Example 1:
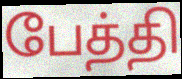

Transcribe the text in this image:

பேத்தி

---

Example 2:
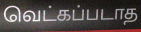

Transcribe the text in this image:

வெட்கப்படாத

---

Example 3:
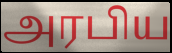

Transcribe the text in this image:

அரபிய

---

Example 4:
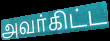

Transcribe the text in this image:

அவர்கிட்ட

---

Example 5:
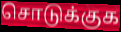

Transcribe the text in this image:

சொடுக்குக